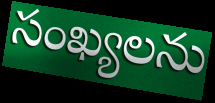
సంఖ్యలను